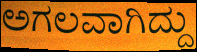
ಅಗಲವಾಗಿದ್ದು